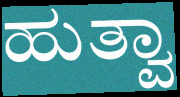
ಹುತ್ವಾ